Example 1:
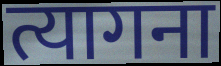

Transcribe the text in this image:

त्यागना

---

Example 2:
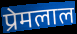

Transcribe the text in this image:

प्रेमलाल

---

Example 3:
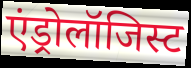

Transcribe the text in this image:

एंड्रोलॉजिस्ट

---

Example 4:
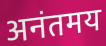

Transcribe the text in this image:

अनंतमय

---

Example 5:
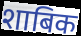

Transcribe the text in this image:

शाबिक